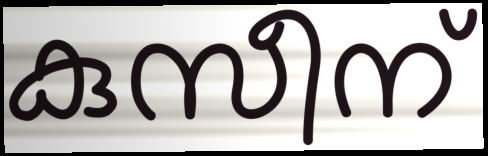
കുസീന്